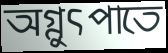
অগ্নুৎপাতে